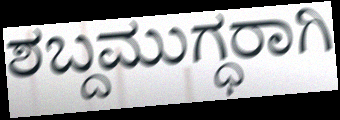
ಶಬ್ದಮುಗ್ಧರಾಗಿ